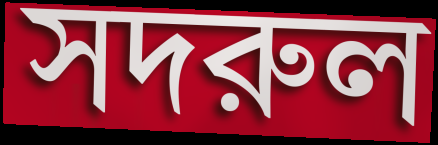
সদরুল